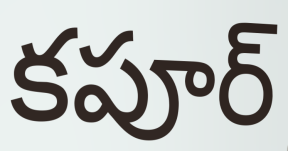
కపూర్